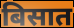
बिसात